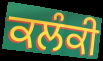
ਕਲੰਕੀ